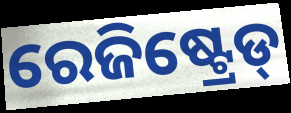
ରେଜିଷ୍ଟ୍ରେଡ୍